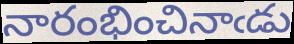
నారంభించినాఁడు